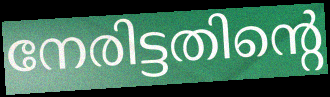
നേരിട്ടതിന്റെ